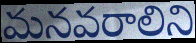
మనవరాలిని